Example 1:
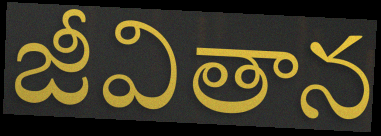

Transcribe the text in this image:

జీవితాన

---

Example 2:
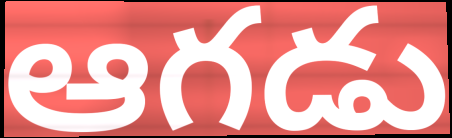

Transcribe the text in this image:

ఆగడు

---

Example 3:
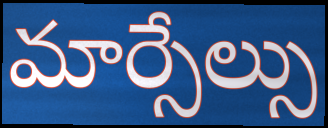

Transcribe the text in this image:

మార్సేల్సు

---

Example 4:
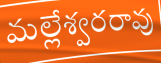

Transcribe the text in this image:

మల్లేశ్వరరావు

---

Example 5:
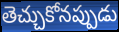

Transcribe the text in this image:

తెచ్చుకోనప్పుడు